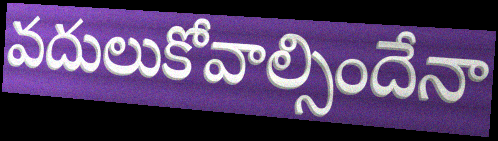
వదులుకోవాల్సిందేనా